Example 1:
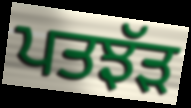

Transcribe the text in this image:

ਪਤਝੱੜ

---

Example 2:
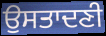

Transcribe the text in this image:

ਉਸਤਾਦਣੀ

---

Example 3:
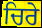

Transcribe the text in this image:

ਚਿਰੇ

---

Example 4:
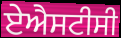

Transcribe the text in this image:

ਏਐਸਟੀਸੀ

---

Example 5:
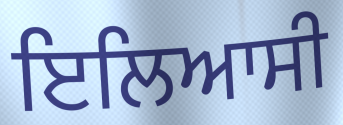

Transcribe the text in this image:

ਇਲਿਆਸੀ